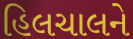
હિલચાલને